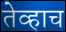
तेव्हाच